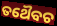
ତଥୈବଚ